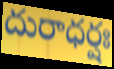
దురాధర్షః